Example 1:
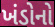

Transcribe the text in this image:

ખંડોનો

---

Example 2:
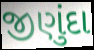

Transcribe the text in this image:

જીણુંદા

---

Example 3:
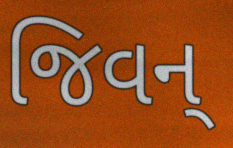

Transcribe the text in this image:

જિવન્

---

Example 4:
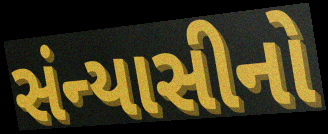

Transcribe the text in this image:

સંન્યાસીનો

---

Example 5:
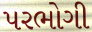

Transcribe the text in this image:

પરભોગી